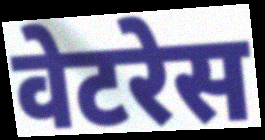
वेटरेस